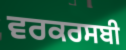
ਵਰਕਰਸਬੀ